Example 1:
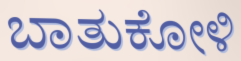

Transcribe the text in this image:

ಬಾತುಕೋಳಿ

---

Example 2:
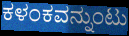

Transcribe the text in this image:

ಕಳಂಕವನ್ನುಂಟು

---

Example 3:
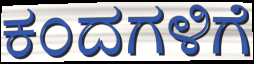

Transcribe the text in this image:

ಕಂದಗಳಿಗೆ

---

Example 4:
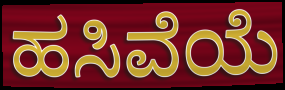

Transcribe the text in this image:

ಹಸಿವೆಯೆ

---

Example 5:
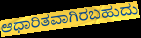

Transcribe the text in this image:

ಆಧಾರಿತವಾಗಿರಬಹುದು